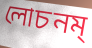
লোচনম্